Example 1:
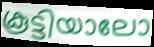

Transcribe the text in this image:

കൂട്ടിയാലോ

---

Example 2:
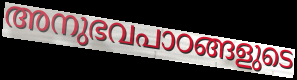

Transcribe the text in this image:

അനുഭവപാഠങ്ങളുടെ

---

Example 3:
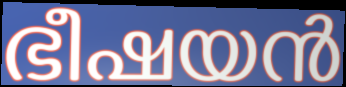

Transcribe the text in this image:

ഭീഷയൻ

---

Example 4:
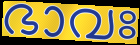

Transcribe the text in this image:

ഭാവഃ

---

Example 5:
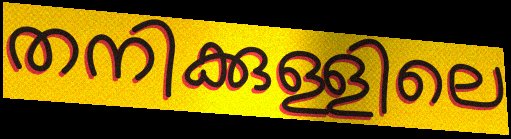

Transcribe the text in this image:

തനിക്കുള്ളിലെ